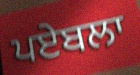
ਪਏਬਲਾ